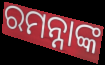
ରମନ୍ନାଙ୍କ